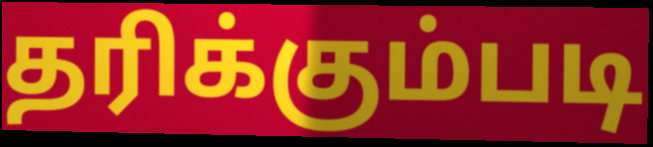
தரிக்கும்படி